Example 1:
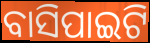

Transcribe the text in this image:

ବାସିପାଇଟି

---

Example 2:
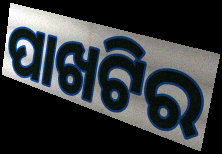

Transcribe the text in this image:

ପାଖଟିର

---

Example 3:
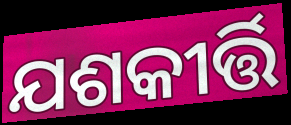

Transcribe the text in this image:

ଯଶକୀର୍ତ୍ତି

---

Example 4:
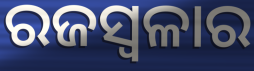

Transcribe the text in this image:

ରଜସ୍ୱଳାର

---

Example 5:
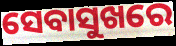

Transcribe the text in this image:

ସେବାସୁଖରେ